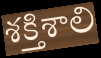
శక్తిశాలి